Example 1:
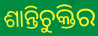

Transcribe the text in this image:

ଶାନ୍ତିଚୁକ୍ତିର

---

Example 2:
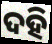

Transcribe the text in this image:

ଦହି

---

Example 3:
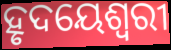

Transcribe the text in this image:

ହୃଦୟେଶ୍ୱରୀ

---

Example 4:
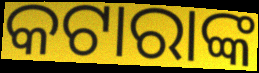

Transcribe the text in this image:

କଟାରାଙ୍କ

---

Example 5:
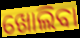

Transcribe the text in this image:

ଖୋଲିବା